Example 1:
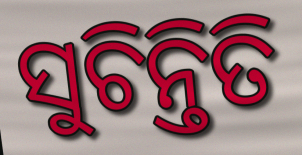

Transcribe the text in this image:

ସୁଚିନ୍ତିତି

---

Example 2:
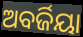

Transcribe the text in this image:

ଅବର୍ଜିୟା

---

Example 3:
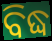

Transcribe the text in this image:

ବିଦ୍ଧ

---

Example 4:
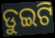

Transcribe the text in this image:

ଡୁଇଟି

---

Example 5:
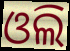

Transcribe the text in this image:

ଓଲି